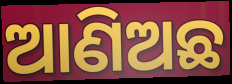
ଆଣିଅଛ